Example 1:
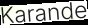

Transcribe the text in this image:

Karande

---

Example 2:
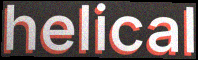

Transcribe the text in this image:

helical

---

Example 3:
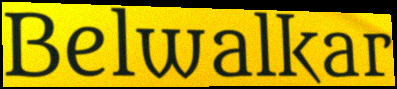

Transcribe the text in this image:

Belwalkar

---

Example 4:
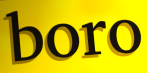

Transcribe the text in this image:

boro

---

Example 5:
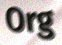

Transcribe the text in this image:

Org